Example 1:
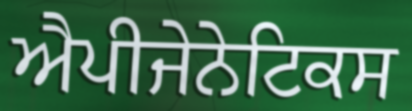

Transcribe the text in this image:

ਐਪੀਜੇਨੇਟਿਕਸ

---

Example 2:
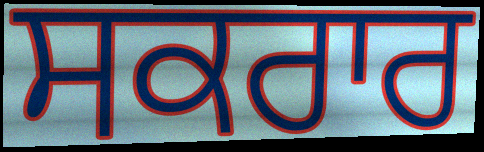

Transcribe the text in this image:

ਸਕਰਾਰ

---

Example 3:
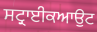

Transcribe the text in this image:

ਸਟ੍ਰਾਈਕਆਉਟ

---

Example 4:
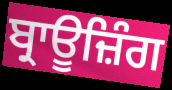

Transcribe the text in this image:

ਬ੍ਰਾਊਜ਼ਿੰਗ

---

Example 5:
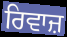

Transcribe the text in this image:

ਰਿਵਾਜ਼